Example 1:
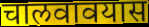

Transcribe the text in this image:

चालवावयास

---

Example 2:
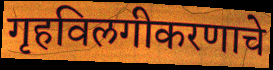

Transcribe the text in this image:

गृहविलगीकरणाचे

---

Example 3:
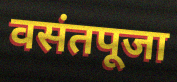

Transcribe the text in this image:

वसंतपूजा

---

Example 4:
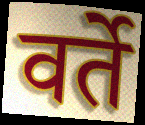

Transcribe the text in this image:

वर्ते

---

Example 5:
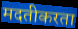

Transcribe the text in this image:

मदतीकरता